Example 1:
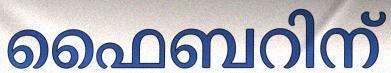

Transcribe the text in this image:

ഫൈബറിന്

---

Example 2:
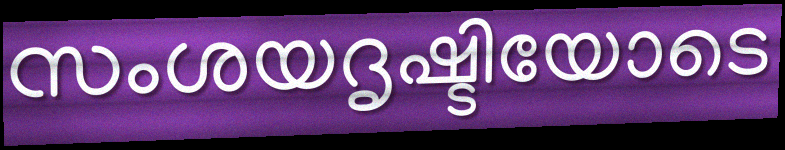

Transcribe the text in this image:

സംശയദൃഷ്ടിയോടെ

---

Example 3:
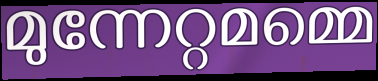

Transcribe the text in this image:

മുന്നേറ്റമമ്മെ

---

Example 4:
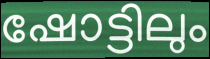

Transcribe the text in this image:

ഷോട്ടിലും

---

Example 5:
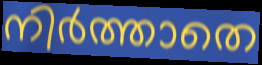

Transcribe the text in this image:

നിർത്താതെ